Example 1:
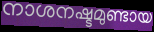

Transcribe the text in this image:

നാശനഷ്ടമുണ്ടായ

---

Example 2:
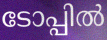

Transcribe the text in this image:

ടോപ്പിൽ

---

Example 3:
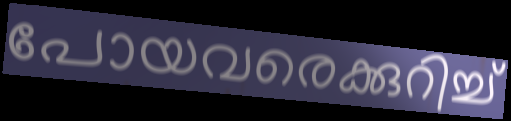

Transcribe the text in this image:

പോയവരെക്കുറിച്ച്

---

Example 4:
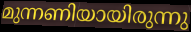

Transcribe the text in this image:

മുന്നണിയായിരുന്നു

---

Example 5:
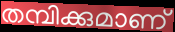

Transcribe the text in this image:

തമ്പിക്കുമാണ്